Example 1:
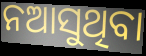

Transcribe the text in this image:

ନଆସୁଥିବା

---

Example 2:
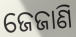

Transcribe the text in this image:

ଜେଜାଣି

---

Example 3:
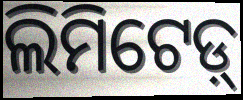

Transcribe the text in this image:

ଲିମିଟେଡ଼୍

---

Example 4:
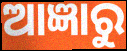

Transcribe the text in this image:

ଆଜ୍ଞାରୁ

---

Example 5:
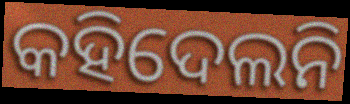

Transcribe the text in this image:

କହିଦେଲନି